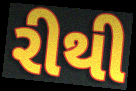
રીથી